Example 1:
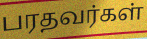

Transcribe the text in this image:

பரதவர்கள்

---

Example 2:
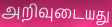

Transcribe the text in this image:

அறிவுடையது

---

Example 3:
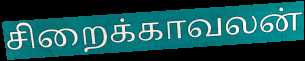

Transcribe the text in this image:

சிறைக்காவலன்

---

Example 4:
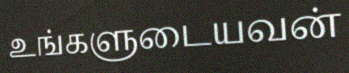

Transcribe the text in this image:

உங்களுடையவன்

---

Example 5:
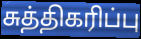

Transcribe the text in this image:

சுத்திகரிப்பு